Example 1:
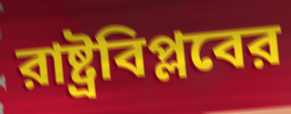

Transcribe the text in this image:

রাষ্ট্রবিপ্লবের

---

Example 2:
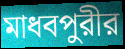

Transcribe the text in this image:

মাধবপুরীর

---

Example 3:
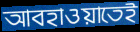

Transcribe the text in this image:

আবহাওয়াতেই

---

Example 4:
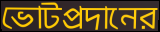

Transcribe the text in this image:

ভোটপ্রদানের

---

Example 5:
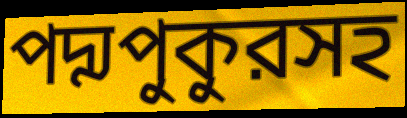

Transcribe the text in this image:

পদ্মপুকুরসহ